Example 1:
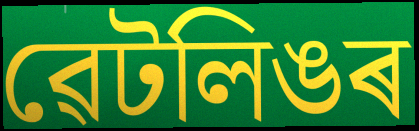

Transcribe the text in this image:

ৱেটলিঙৰ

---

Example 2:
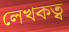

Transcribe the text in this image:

লেখকত্ব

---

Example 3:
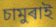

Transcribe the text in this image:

চামুৰাই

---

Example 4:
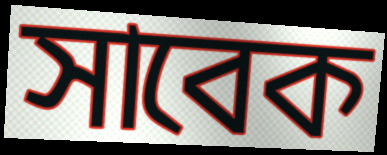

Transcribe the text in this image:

সাবেক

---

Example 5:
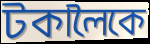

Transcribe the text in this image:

টকালৈকে